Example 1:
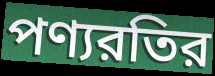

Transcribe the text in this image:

পণ্যরতির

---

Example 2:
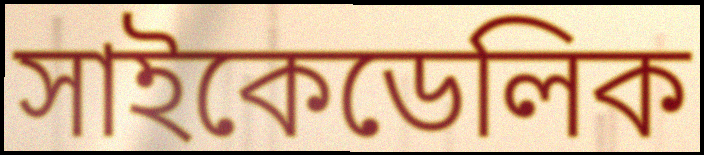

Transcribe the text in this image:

সাইকেডেলিক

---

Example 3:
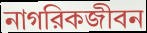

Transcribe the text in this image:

নাগরিকজীবন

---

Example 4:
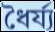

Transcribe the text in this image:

ধৈর্য্য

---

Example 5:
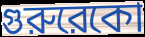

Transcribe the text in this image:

গুরুরেকো